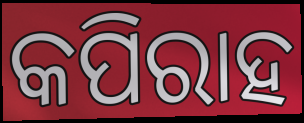
କପିରାହ